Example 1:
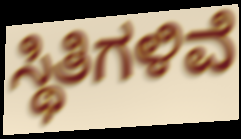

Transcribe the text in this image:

ಸ್ಥಿತಿಗಳಿವೆ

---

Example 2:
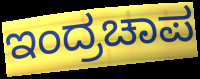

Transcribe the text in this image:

ಇಂದ್ರಚಾಪ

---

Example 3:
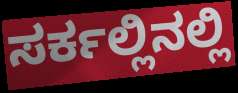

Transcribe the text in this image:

ಸರ್ಕಲ್ಲಿನಲ್ಲಿ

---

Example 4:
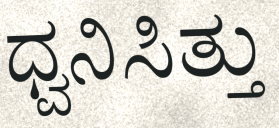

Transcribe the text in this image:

ಧ್ವನಿಸಿತ್ತು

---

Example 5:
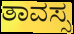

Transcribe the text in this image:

ತಾವಸ್ಸ